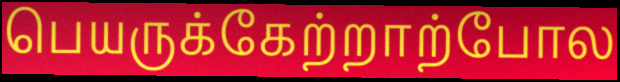
பெயருக்கேற்றாற்போல